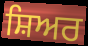
ਸ਼ਿਅਰ